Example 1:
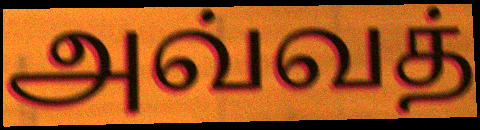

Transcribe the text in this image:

அவ்வத்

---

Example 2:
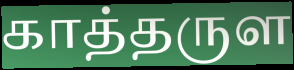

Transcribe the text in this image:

காத்தருள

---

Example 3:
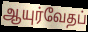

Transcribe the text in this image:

ஆயுர்வேதப்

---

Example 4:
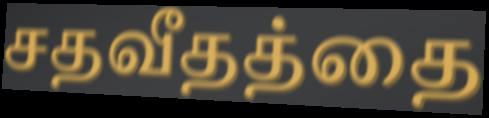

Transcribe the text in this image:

சதவீதத்தை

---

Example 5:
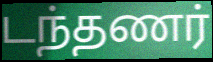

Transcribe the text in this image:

டந்தணர்